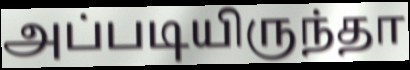
அப்படியிருந்தா